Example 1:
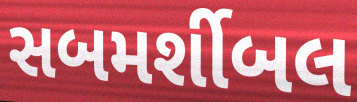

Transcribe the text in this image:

સબમર્શીબલ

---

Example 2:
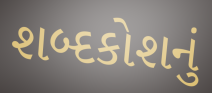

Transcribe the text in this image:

શબ્દકોશનું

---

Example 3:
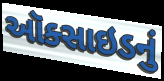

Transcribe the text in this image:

ઑક્સાઇડનું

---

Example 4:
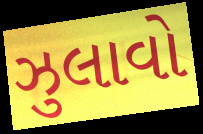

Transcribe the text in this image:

ઝુલાવો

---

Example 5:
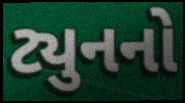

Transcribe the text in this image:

ટ્યુનનો